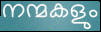
നന്മകളും